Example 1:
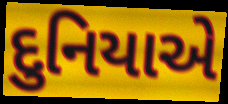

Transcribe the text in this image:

દુનિયાએ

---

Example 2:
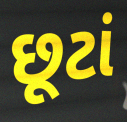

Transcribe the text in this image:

છૂટાં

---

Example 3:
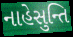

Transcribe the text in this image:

નાહેસુન્તિ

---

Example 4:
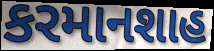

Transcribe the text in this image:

કરમાનશાહ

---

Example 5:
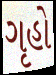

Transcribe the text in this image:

ગૃહો